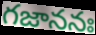
గజాననః